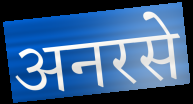
अनरसे